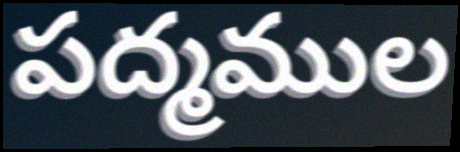
పద్మముల